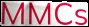
MMCs